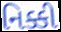
નિક્કી